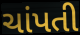
ચાંપતી